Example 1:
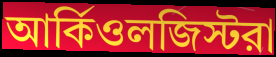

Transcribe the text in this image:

আর্কিওলজিস্টরা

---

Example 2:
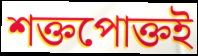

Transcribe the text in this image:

শক্তপোক্তই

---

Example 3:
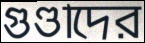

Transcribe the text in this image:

গুণ্ডাদের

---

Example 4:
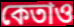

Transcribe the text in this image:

কেতাও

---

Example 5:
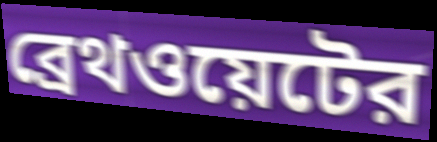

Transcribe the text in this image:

ব্রেথওয়েটের